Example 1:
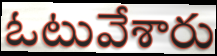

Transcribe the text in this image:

ఓటువేశారు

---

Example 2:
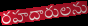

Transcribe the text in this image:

రహదారులను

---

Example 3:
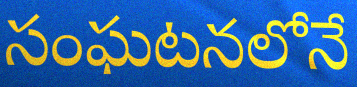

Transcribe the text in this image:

సంఘటనలోనే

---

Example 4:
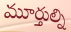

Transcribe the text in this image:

మూర్తుల్ని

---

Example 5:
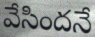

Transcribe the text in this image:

వేసిందనే